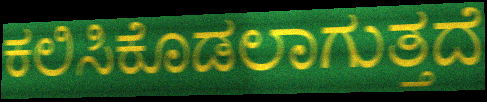
ಕಲಿಸಿಕೊಡಲಾಗುತ್ತದೆ